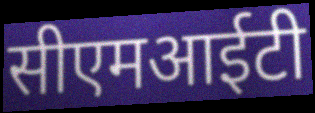
सीएमआईटी